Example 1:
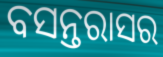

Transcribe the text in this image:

ବସନ୍ତରାସର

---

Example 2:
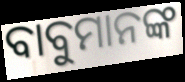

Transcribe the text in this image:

ବାବୁମାନଙ୍କ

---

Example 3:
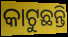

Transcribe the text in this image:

କାଟୁଛନ୍ତି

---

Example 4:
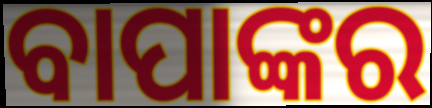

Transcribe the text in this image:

ବାପାଙ୍କର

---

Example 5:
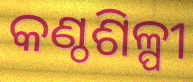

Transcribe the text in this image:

କଣ୍ଠଶିଳ୍ପୀ